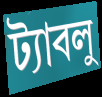
ট্যাবলু